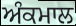
ਅੰਕਮਾਲ